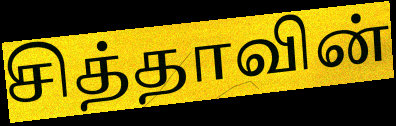
சித்தாவின்